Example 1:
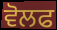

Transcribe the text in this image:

ਵੋਲਫ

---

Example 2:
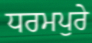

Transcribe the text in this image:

ਧਰਮਪੁਰੇ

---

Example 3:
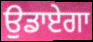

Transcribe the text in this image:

ਉਡਾਏਗਾ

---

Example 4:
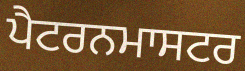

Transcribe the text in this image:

ਪੈਟਰਨਮਾਸਟਰ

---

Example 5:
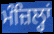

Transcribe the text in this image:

ਮੰਜ਼ਿਲ੍ਹਾਂ